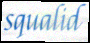
squalid